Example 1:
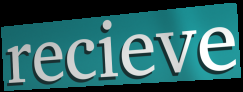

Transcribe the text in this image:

recieve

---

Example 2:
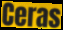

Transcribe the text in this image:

Ceras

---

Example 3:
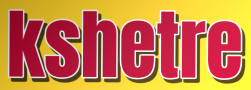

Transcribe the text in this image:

kshetre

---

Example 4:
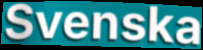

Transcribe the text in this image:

Svenska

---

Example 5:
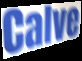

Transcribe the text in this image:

Calve